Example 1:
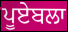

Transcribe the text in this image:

ਪੂਏਬਲਾ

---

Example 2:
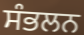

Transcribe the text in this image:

ਸੰਭਲਨ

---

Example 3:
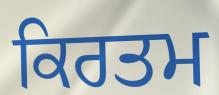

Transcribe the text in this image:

ਕਿਰਤਮ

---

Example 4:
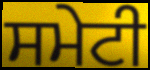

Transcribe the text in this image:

ਸਮੇਟੀ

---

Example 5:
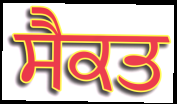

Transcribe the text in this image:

ਸੈਕਤ